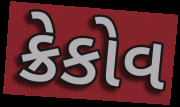
ક્રેકોવ